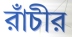
রাঁচীর